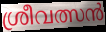
ശ്രീവത്സൻ